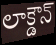
లాక్డౌన్